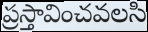
ప్రస్తావించవలసి